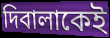
দিবালাকেই